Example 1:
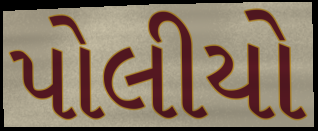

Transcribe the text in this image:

પોલીયો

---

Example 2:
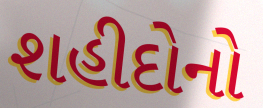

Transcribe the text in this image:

શહીદોનો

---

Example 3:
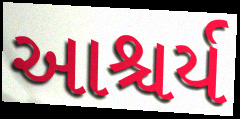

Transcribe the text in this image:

આશ્ચર્ય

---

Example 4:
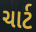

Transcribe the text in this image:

ચાર્ટ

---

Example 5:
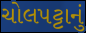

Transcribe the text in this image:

ચોલપટ્ટાનું